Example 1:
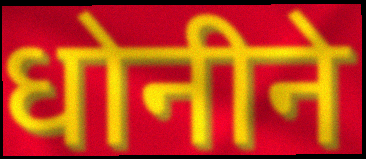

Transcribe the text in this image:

धोनीने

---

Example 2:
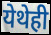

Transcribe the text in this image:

येथेही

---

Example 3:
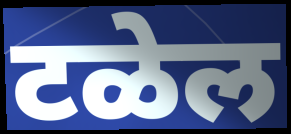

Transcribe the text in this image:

टळेल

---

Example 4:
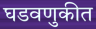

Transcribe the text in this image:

घडवणुकीत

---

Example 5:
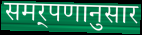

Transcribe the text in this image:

समर्पणानुसार